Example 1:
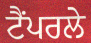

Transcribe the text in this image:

ਟੈਂਪਰਲੇ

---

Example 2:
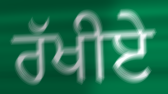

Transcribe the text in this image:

ਰੱਖੀਏ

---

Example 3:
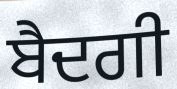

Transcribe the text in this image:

ਬੈਦਗੀ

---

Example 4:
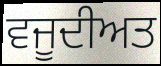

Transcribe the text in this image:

ਵਜੂਦੀਅਤ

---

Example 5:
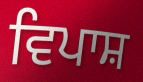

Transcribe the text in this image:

ਵਿਪਾਸ਼